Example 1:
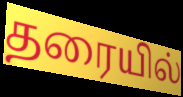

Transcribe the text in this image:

தரையில்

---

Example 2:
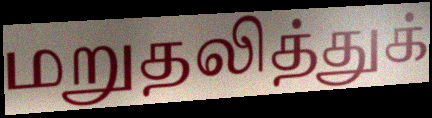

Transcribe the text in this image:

மறுதலித்துக்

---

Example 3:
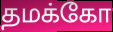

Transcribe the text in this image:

தமக்கோ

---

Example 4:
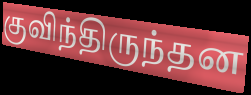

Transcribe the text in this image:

குவிந்திருந்தன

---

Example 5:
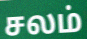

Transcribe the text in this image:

சலம்